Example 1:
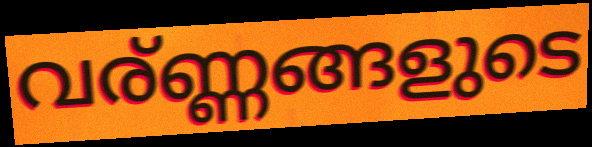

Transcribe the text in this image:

വര്ണ്ണങ്ങളുടെ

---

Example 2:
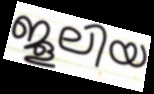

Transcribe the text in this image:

ജൂലിയ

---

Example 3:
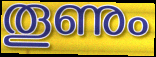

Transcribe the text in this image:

തൂണും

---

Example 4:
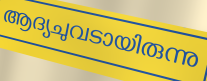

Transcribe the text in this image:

ആദ്യചുവടായിരുന്നു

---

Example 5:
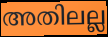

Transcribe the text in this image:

അതിലല്ല